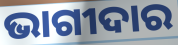
ଭାଗୀଦାର